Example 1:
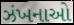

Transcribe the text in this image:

ઝંખનાઓ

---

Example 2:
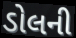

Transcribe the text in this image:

ડોલની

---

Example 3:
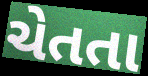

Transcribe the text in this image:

ચેતતા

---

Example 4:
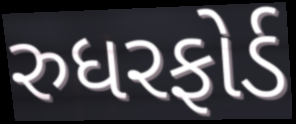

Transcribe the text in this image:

રુધરફોર્ડ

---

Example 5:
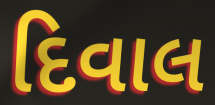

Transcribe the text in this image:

દિવાલ